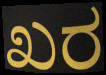
ಖರ